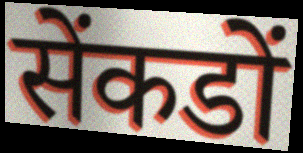
सेंकडों